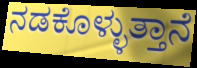
ನಡಕೊಳ್ಳುತ್ತಾನೆ